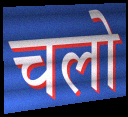
चलो